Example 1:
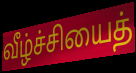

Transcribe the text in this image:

வீழ்ச்சியைத்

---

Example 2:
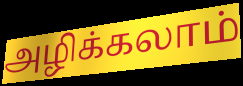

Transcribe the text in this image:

அழிக்கலாம்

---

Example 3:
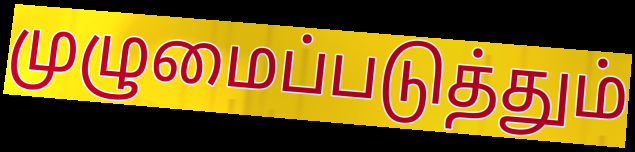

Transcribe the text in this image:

முழுமைப்படுத்தும்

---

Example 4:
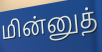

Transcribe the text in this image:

மின்னுத்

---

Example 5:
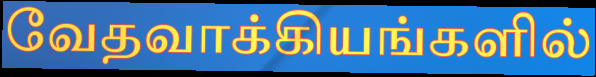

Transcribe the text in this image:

வேதவாக்கியங்களில்